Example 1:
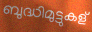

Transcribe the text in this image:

ബുദ്ധിമുട്ടുകള്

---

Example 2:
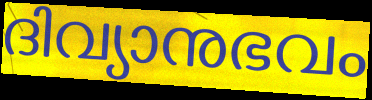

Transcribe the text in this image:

ദിവ്യാനുഭവം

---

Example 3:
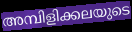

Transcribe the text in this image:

അമ്പിളിക്കലയുടെ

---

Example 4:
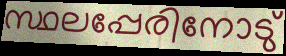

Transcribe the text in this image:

സ്ഥലപ്പേരിനോടു്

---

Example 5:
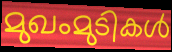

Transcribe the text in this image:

മുഖംമുടികൾ